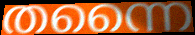
തന്നൈ